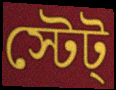
স্টেট্